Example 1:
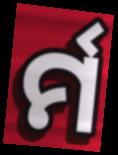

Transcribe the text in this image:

ର୍ମ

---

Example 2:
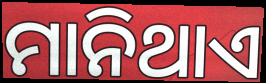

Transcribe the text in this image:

ମାନିଥାଏ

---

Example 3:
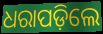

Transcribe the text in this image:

ଧରାପଡ଼ିଲେ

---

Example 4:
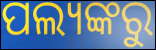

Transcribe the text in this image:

ପଲ୍ୟଙ୍କରୁ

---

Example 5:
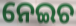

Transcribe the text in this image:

ନେଇଚ